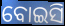
ବୋଇସି